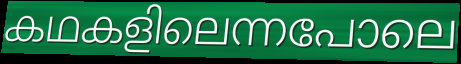
കഥകളിലെന്നപോലെ